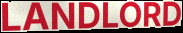
LANDLORD